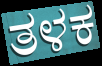
ತಳಕ